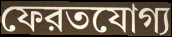
ফেরতযোগ্য